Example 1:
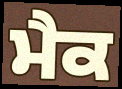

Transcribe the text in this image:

ਮੈਕ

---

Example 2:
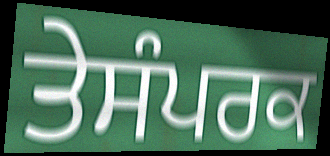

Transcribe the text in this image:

ਤੇਸੰਪਰਕ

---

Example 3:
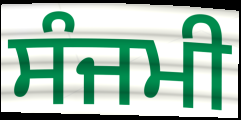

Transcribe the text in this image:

ਸੰਜਮੀ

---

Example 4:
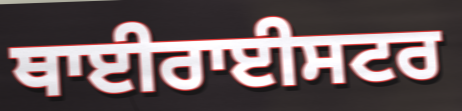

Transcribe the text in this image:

ਥਾਈਰਾਈਸਟਰ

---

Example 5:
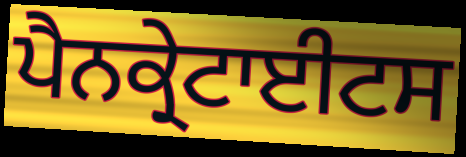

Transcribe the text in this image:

ਪੈਨਕ੍ਰੇਟਾਈਟਸ